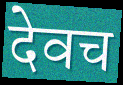
देवच